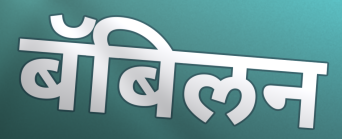
बॅबिलन